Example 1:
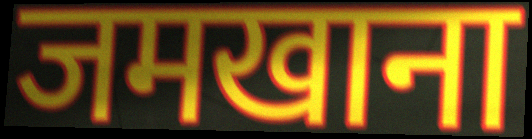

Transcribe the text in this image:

जमखाना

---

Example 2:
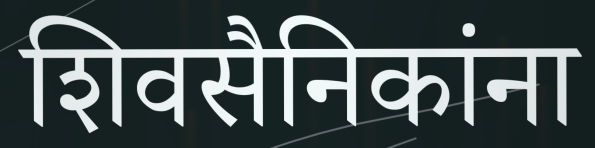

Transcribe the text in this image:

शिवसैनिकांना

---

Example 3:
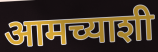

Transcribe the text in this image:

आमच्याशी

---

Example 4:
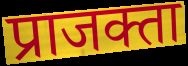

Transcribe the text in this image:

प्राजक्ता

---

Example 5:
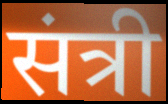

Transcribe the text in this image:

संत्री